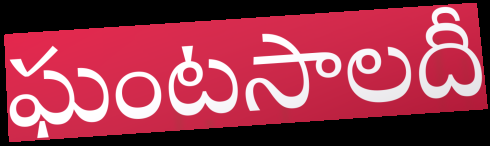
ఘంటసాలదీ